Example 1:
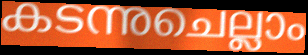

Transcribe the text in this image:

കടന്നുചെല്ലാം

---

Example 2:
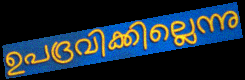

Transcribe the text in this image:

ഉപദ്രവിക്കില്ലെന്നു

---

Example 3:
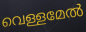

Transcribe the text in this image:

വെള്ളമേൽ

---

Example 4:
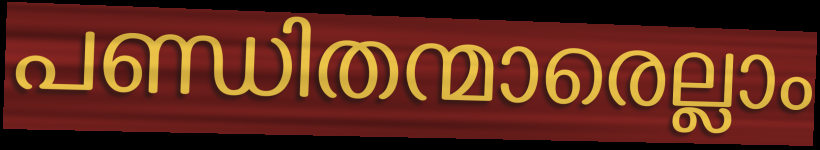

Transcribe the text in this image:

പണ്ഡിതന്മാരെല്ലാം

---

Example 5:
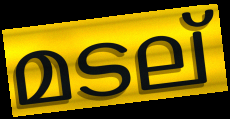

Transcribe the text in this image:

മടല്